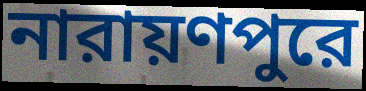
নারায়ণপুরে